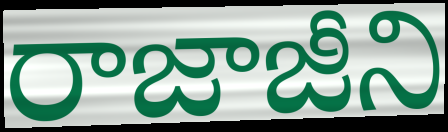
రాజాజీని